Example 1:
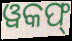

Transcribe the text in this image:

ୱକଫ୍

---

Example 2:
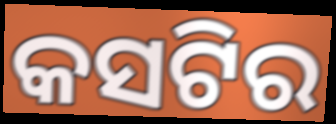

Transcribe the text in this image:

କସଟିର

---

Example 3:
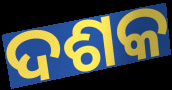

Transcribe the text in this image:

ଦଶକ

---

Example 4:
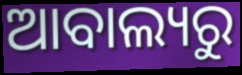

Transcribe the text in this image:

ଆବାଲ୍ୟରୁ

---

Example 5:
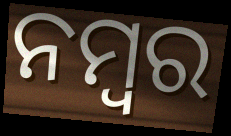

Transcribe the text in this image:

ନମ୍ବର